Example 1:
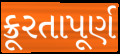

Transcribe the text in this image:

ક્રૂરતાપૂર્ણ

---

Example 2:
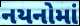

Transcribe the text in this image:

નયનોમાં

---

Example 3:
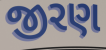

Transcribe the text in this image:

જીરણ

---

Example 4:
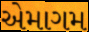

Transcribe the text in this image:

એમાગમ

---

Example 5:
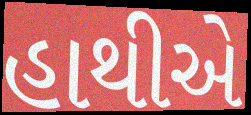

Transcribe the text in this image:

હાથીએ